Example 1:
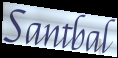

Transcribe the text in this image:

Santbal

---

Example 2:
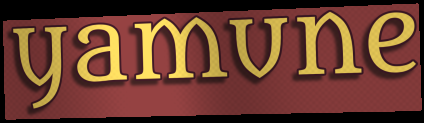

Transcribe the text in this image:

yamune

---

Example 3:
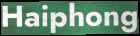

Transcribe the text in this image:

Haiphong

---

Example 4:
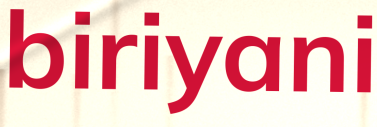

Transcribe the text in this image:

biriyani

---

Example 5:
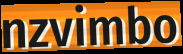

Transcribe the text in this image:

nzvimbo